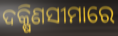
ଦକ୍ଷିଣସୀମାରେ